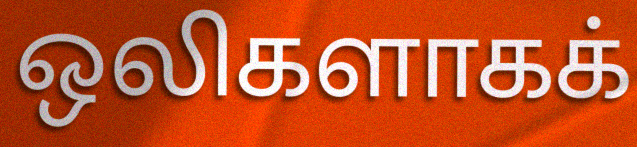
ஒலிகளாகக்